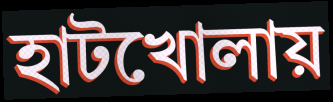
হাটখোলায়